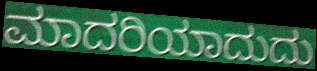
ಮಾದರಿಯಾದುದು